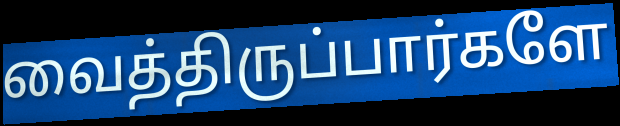
வைத்திருப்பார்களே